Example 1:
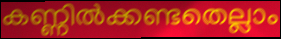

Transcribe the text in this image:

കണ്ണിൽക്കണ്ടതെല്ലാം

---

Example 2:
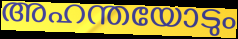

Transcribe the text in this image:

അഹന്തയോടും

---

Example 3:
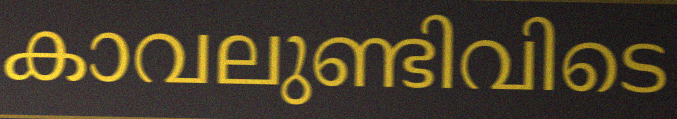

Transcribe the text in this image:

കാവലുണ്ടിവിടെ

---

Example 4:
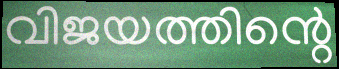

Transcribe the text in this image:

വിജയത്തിന്റെ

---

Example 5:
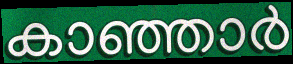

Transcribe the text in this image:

കാഞ്ഞാർ